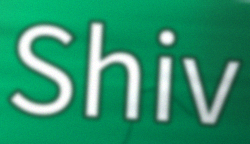
Shiv